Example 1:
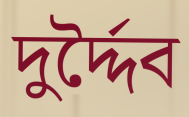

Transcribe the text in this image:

দুর্দ্দৈব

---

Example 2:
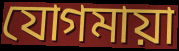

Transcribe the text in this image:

যোগমায়া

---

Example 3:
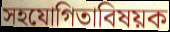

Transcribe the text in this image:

সহযোগিতাবিষয়ক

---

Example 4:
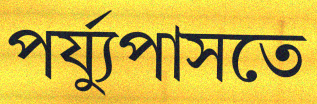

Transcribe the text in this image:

পর্য্যুপাসতে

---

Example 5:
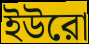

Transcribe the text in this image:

ইউরো